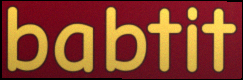
babtit